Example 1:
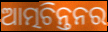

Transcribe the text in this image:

ଆତ୍ମଚିନ୍ତନର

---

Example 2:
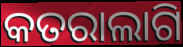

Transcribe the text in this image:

କତରାଲାଗି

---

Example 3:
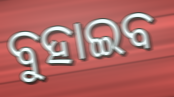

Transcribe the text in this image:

ବୁହାଇବ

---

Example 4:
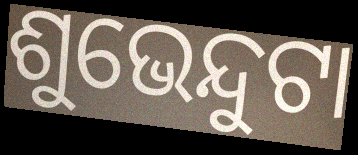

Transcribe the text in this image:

ଶୁଭେନ୍ଦୁଟା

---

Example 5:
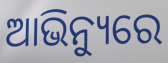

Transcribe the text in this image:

ଆଭିନ୍ୟୁରେ